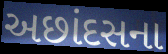
અછાંદસના